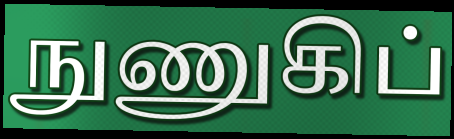
நுணுகிப்